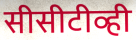
सीसीटीव्ही